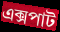
এক্সপাট